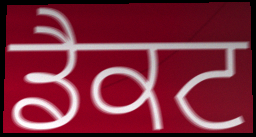
ਡੈਕਟ